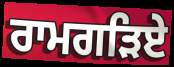
ਰਾਮਗੜਿਏ